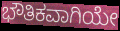
ಭೌತಿಕವಾಗಿಯೇ